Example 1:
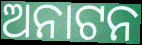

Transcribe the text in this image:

ଅନାଟନ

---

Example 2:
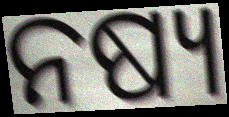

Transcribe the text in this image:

ନଷ୍ଯ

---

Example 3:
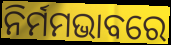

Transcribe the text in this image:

ନିର୍ମମଭାବରେ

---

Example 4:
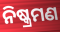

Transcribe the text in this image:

ନିଷ୍କ୍ରମଣ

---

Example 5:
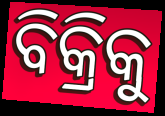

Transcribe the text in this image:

ବିକ୍ରିକୁ